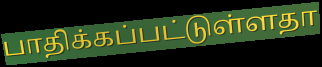
பாதிக்கப்பட்டுள்ளதா